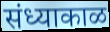
संध्याकाळ